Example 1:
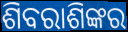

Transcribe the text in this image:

ଶିବରାଶିଙ୍କର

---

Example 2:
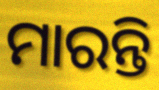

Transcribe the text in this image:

ମାରନ୍ତି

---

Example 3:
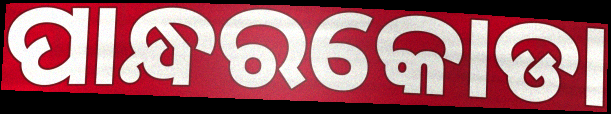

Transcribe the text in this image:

ପାନ୍ଧରକୋଡା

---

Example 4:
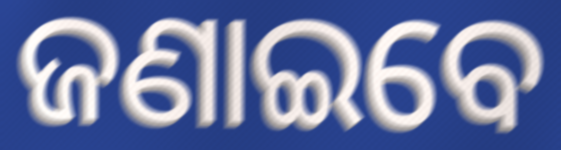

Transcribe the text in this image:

ଜଣାଇବେ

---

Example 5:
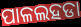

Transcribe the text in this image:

ପାଳଲହଡା